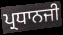
ਪ੍ਰਧਾਨਜੀ